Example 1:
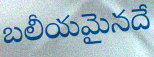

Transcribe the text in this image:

బలీయమైనదే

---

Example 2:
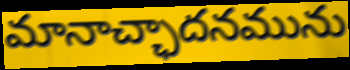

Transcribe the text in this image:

మానాచ్ఛాదనమును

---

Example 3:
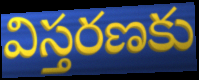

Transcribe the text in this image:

విస్తరణకు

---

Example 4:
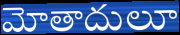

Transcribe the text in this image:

మోతాదులూ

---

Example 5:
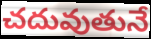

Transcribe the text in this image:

చదువుతునే